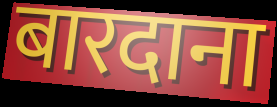
बारदाना